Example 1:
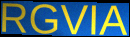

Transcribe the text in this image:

RGVIA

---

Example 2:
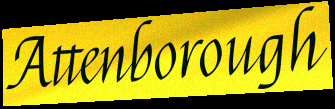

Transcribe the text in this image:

Attenborough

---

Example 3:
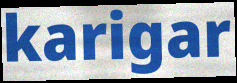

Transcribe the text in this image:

karigar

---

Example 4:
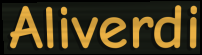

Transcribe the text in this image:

Aliverdi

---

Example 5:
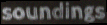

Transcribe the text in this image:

soundings